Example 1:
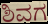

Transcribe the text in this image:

ಶಿವಗ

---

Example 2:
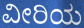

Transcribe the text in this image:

ವೀರಿಯ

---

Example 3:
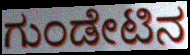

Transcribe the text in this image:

ಗುಂಡೇಟಿನ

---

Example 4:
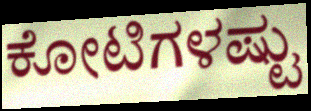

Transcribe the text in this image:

ಕೋಟಿಗಳಷ್ಟು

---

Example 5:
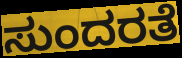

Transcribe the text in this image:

ಸುಂದರತೆ